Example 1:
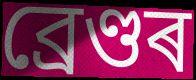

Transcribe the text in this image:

ব্ৰেণ্ডৰ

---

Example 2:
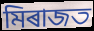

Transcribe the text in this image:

মিৰাজত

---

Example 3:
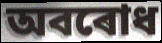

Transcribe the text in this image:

অবৰোধ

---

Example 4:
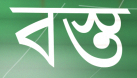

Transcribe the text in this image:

বস্ত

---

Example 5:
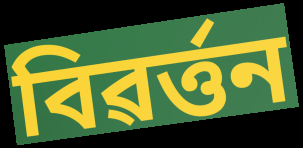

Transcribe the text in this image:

বিৱৰ্ত্তন